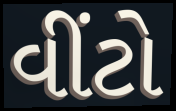
વીંટો